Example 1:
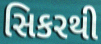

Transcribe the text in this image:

સિકરથી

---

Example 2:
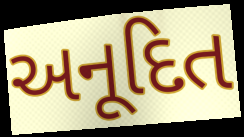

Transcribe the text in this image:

અનૂદિત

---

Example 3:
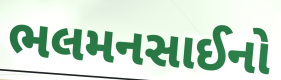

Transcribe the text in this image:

ભલમનસાઈનો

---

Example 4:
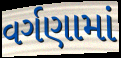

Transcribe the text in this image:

વર્ગણામાં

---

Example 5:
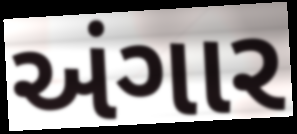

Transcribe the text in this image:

અંગાર